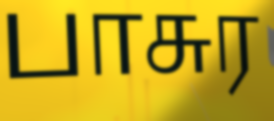
பாசுர